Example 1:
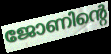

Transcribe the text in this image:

ജോണിന്റെ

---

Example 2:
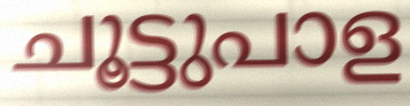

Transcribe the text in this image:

ചൂട്ടുപാള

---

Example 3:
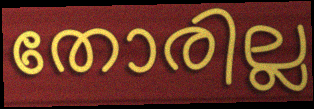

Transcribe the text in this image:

തോരില്ല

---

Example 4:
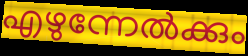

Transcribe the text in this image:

എഴുന്നേൽക്കും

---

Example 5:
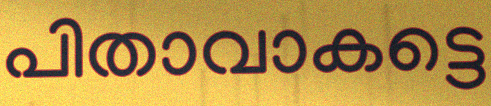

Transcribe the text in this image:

പിതാവാകട്ടെ